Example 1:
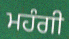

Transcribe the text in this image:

ਮਹੰਗੀ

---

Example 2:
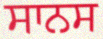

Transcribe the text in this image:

ਸਾਨਸ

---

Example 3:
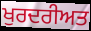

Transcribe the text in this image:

ਖੁਰਦਰੀਅਤ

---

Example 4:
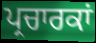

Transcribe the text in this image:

ਪ੍ਰਚਾਰਕਾਂ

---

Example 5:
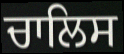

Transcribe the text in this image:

ਚਾਲਿਸ